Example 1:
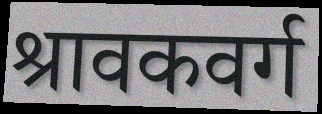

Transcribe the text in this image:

श्रावकवर्ग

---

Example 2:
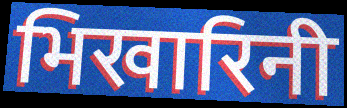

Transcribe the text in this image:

भिखारिनी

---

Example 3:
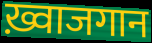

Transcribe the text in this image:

ख़्वाजगान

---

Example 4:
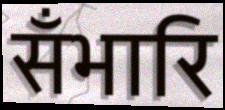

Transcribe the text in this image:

सँभारि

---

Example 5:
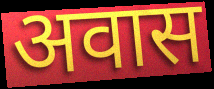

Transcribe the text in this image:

अवास